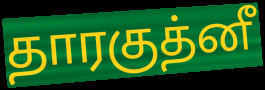
தாரகுத்னீ